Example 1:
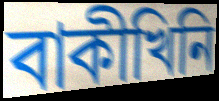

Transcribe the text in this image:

বাকীখিনি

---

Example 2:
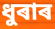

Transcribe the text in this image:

ধুৰাৰ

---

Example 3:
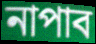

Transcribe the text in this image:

নাপাব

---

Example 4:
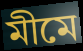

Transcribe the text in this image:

মীমে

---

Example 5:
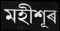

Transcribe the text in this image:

মহীশূৰ